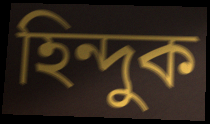
হিন্দুক